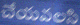
చేయవలసి